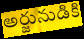
అర్జునుడికి